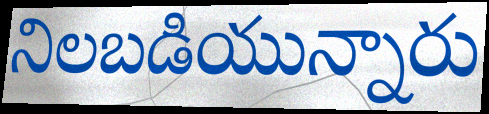
నిలబడియున్నారు